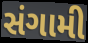
સંગામી